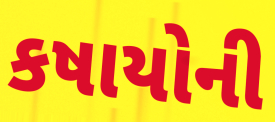
કષાયોની